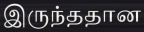
இருந்ததான